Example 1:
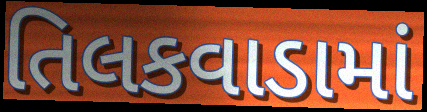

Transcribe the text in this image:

તિલકવાડામાં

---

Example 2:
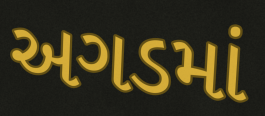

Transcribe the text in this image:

અગડમાં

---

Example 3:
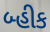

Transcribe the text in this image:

બ્હીક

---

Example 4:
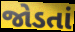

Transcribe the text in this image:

જોડતાં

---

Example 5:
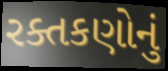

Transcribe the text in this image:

રક્તકણોનું